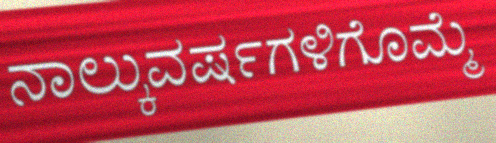
ನಾಲ್ಕುವರ್ಷಗಳಿಗೊಮ್ಮೆ